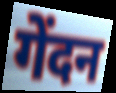
गेंदन